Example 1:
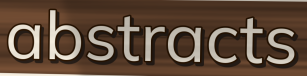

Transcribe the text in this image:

abstracts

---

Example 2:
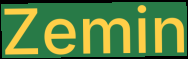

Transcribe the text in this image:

Zemin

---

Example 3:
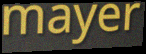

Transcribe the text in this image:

mayer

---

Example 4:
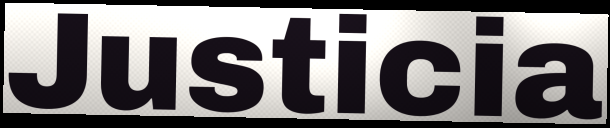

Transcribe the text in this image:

Justicia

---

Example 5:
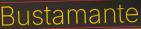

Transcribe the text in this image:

Bustamante